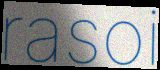
rasoi